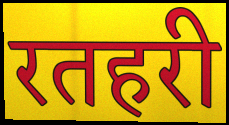
रतहरी